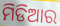
ମିଡିଆର